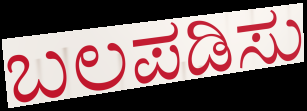
ಬಲಪಡಿಸು